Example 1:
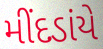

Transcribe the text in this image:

મીંદડાંયે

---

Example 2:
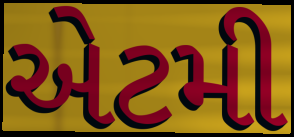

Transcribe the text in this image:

એટમી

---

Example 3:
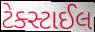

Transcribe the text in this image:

ટેક્સ્ટાઈલ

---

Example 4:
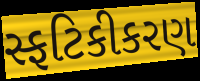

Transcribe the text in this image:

સ્ફટિકીકરણ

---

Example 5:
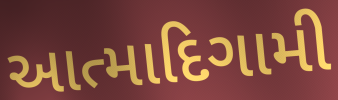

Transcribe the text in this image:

આત્માદિગામી